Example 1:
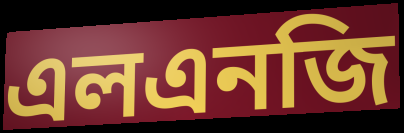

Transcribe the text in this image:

এলএনজি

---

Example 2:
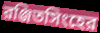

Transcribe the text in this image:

রঞ্জিতসিংহের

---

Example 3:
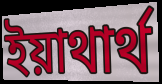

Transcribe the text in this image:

ইয়াথার্থ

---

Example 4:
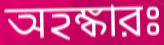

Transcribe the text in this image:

অহঙ্কারঃ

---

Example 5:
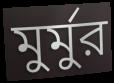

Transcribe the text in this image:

মুর্মুর